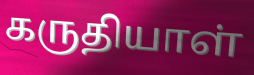
கருதியாள்